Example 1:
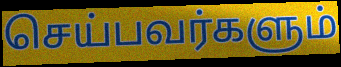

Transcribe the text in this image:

செய்பவர்களும்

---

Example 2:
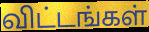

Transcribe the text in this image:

விட்டங்கள்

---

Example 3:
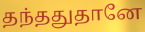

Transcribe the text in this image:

தந்ததுதானே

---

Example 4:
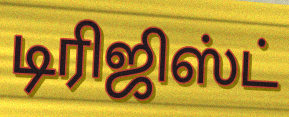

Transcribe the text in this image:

டிரிஜிஸ்ட்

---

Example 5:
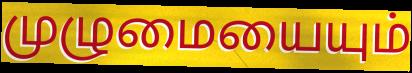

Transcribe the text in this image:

முழுமையையும்